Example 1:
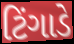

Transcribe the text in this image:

ટિંગાડે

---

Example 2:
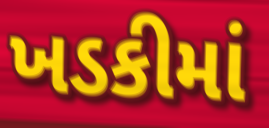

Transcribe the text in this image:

ખડકીમાં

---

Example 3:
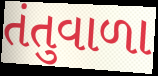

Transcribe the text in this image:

તંતુવાળા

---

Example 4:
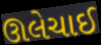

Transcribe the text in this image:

ઊલેચાઈ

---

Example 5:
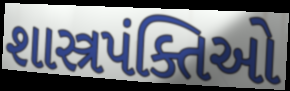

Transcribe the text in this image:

શાસ્ત્રપંક્તિઓ